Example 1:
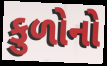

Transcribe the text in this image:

કુળોનો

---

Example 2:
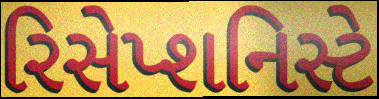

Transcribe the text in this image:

રિસેપ્શનિસ્ટે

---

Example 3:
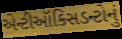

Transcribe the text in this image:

એન્ટીઑકિસડન્ટોનું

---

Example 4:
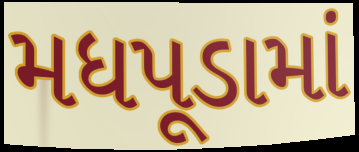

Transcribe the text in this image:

મધપૂડામાં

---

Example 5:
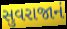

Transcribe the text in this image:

સુવરાજાનં